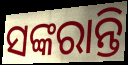
ସଙ୍କରାନ୍ତି